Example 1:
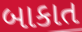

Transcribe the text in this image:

બાકાત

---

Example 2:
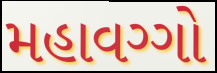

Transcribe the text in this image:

મહાવગ્ગો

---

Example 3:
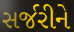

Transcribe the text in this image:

સર્જરીને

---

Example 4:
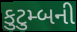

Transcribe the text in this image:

કુટુમ્બની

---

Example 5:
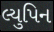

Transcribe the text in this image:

લ્યુપિન